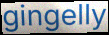
gingelly